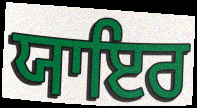
ਯਾਇਰ